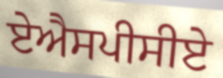
ਏਐਸਪੀਸੀਏ